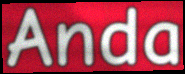
Anda